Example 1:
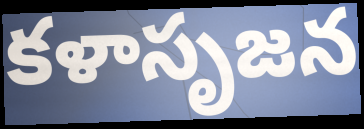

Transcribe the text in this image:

కళాసృజన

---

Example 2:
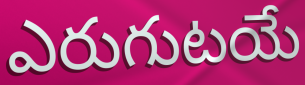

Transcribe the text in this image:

ఎరుగుటయే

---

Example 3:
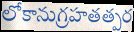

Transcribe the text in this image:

లోకానుగ్రహతత్పర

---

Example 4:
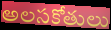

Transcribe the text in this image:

అలసకోతులు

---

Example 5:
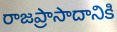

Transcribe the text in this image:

రాజప్రాసాదానికి